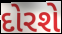
દોરશે